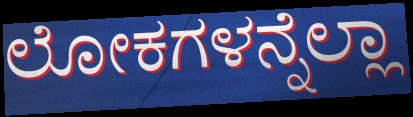
ಲೋಕಗಳನ್ನೆಲ್ಲಾ